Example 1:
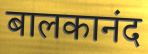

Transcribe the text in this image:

बालकानंद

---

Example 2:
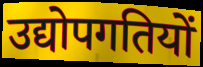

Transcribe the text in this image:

उद्योपगतियों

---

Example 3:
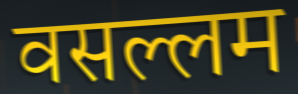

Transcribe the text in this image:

वसल्लम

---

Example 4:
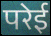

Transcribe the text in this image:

परेई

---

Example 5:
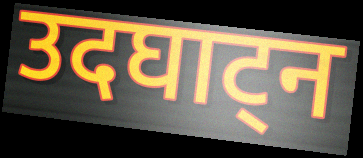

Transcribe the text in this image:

उदघाट्न